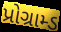
પ્રોગ્રામ્ડ